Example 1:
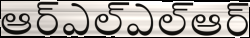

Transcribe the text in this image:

ఆర్ఎల్ఎల్ఆర్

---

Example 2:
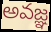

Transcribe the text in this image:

అవజ్ఞ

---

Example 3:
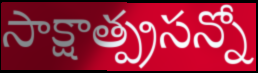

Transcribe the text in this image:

సాక్షాత్ప్రసన్నో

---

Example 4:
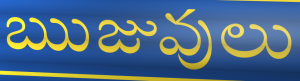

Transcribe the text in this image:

ఋజువులు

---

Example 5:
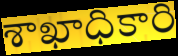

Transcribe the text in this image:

శాఖాధికారి